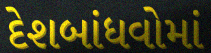
દેશબાંધવોમાં